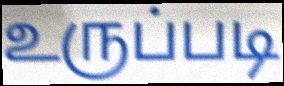
உருப்படி